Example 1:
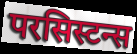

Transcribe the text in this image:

परसिस्टन्स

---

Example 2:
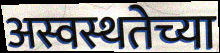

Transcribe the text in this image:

अस्वस्थतेच्या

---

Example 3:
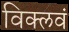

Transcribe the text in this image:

विक्लवं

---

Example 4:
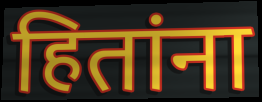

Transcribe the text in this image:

हितांना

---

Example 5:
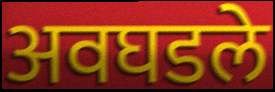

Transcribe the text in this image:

अवघडले